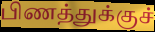
பிணத்துக்குச்